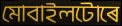
মোবাইলটোৰে